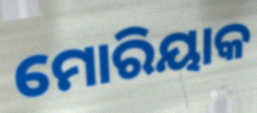
ମୋରିୟାକ